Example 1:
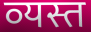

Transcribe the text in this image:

व्‍यस्‍त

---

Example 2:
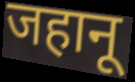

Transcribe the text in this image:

जहानू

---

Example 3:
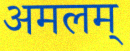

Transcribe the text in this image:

अमलम्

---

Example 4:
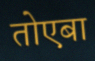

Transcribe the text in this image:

तोएबा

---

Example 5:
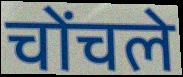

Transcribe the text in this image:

चोंचले